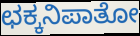
ಛಕ್ಕನಿಪಾತೋ